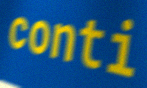
conti